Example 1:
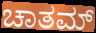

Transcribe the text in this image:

ಚಾತಮ್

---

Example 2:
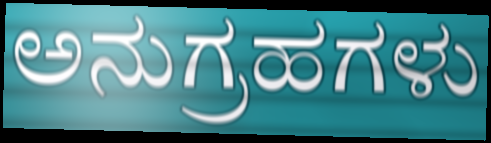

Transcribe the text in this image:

ಅನುಗ್ರಹಗಳು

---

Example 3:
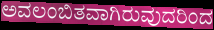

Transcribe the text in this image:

ಅವಲಂಬಿತವಾಗಿರುವುದರಿಂದ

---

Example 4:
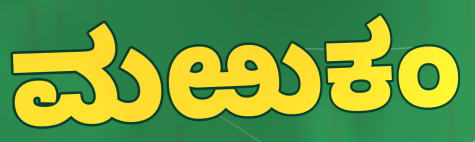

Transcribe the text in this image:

ಮಱುಕಂ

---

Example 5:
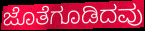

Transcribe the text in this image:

ಜೊತೆಗೂಡಿದವು